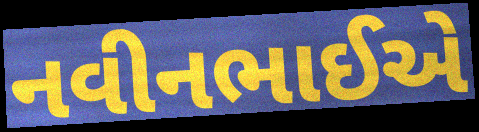
નવીનભાઈએ